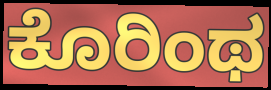
ಕೊರಿಂಥ